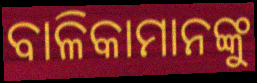
ବାଳିକାମାନଙ୍କୁ